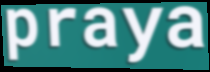
praya